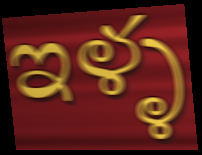
ఇళ్ళ